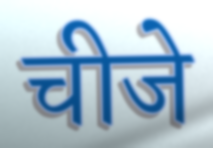
चीजे